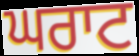
ਘਰਾਟ